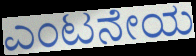
ಎಂಟನೇಯ